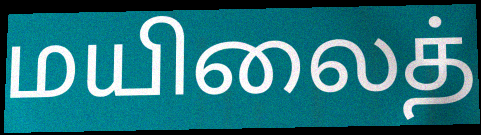
மயிலைத்